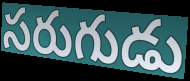
సరుగుడు